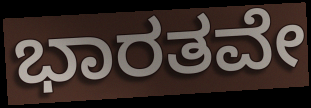
ಭಾರತವೇ